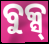
ବୁକ୍ସ୍